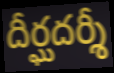
దీర్ఘదర్శీ